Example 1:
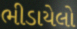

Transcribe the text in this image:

ભીડાયેલો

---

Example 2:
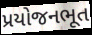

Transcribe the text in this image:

પ્રયોજનભૂત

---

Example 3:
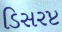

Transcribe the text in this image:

ડિસરપ્ટ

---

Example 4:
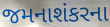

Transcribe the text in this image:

જમનાશંકરના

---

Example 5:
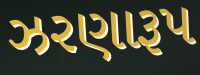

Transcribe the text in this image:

ઝરણારૂપ